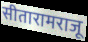
सीतारामराजू